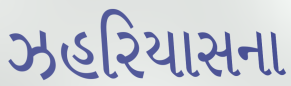
ઝહરિયાસના